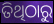
ତିଥିଠାରୁ